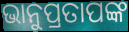
ଭାନୁପ୍ରତାପଙ୍କ